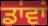
ਡਾਂਵਾਂ